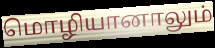
மொழியானாலும்